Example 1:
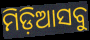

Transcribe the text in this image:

ମିଡ଼ିଆସବୁ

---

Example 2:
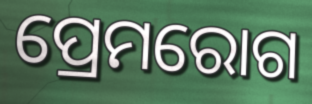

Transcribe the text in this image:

ପ୍ରେମରୋଗ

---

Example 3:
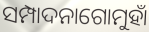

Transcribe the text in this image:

ସମ୍ପାଦନାଗୋମୁହାଁ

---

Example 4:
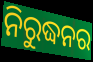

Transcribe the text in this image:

ନିରୁଦ୍ଧନର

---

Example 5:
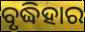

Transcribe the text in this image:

ବୃଦ୍ଧିହାର